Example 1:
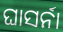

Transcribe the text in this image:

ଘାସର୍ନା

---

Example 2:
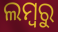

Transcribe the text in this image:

ଲମ୍ବରୁ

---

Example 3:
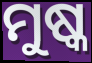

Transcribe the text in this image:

ମୁଷ୍କ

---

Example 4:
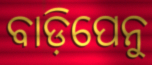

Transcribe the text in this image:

ବାଡ଼ିପେନୁ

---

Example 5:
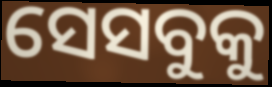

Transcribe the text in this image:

ସେସବୁକୁ